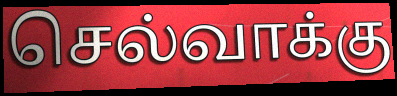
செல்வாக்கு